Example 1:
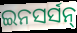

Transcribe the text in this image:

ଇନସର୍ସନ୍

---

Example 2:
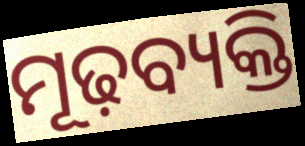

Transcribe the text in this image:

ମୂଢ଼ବ୍ୟକ୍ତି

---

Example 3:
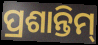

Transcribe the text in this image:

ପ୍ରଶାନ୍ତିମ୍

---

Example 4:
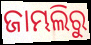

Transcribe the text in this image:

ଜାମ୍ଭଲିରୁ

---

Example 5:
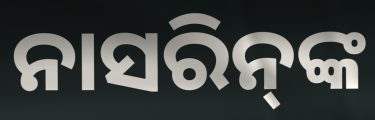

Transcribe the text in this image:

ନାସରିନ୍‌ଙ୍କ